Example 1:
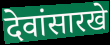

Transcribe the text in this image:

देवांसारखे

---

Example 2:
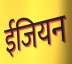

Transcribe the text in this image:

ईजियन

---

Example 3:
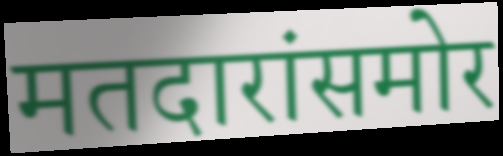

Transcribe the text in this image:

मतदारांसमोर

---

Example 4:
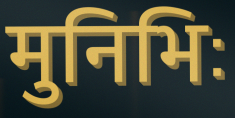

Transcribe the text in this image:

मुनिभिः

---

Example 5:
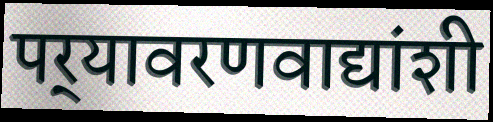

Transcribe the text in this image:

पर्यावरणवाद्यांशी